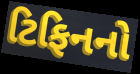
ટિફિનનો